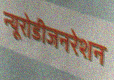
न्यूरोडीजनरेशन